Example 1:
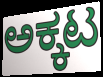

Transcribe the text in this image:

ಅಕ್ಕಟ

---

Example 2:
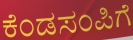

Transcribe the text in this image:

ಕೆಂಡಸಂಪಿಗೆ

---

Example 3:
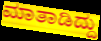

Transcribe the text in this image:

ಮಾತಾಡಿದ್ದು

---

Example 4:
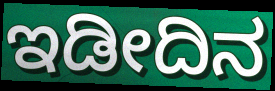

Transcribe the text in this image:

ಇಡೀದಿನ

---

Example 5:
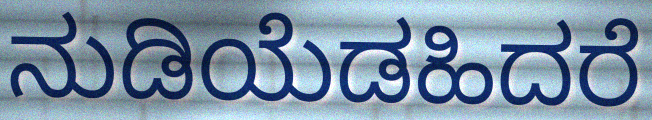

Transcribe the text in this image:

ನುಡಿಯೆಡಹಿದರೆ